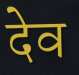
देव